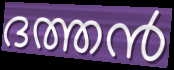
ദത്തൻ